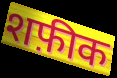
शफ़ीक